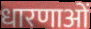
धारणाओं